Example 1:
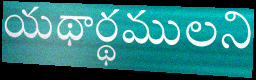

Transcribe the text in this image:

యథార్థములని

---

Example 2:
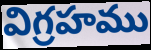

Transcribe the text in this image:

విగ్రహము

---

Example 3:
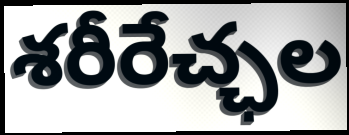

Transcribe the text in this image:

శరీరేచ్ఛల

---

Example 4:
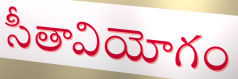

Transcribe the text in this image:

సీతావియోగం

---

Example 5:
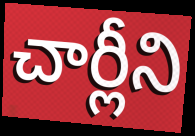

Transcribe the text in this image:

చార్లీని